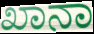
ಖಾನಾ